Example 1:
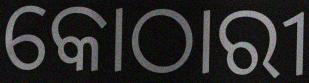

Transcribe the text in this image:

କୋଠାରୀ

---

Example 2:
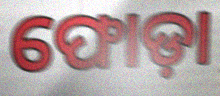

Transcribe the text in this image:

ଫୋଡ଼ା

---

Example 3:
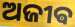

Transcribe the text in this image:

ଅଜୀଵ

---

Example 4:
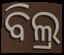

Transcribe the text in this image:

ବିଲ୍ର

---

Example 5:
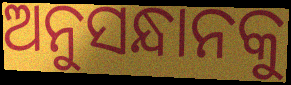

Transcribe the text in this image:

ଅନୁସନ୍ଧାନକୁ